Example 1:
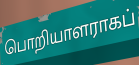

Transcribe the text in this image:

பொறியாளராகப்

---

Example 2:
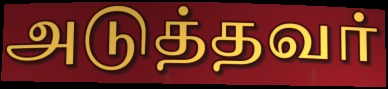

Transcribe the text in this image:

அடுத்தவர்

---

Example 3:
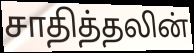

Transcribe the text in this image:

சாதித்தலின்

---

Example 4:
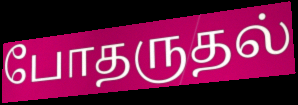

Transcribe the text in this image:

போதருதல்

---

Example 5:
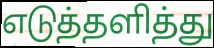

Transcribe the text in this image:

எடுத்தளித்து